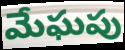
మేఘపు